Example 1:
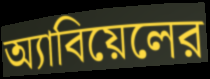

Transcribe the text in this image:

অ্যাবিয়েলের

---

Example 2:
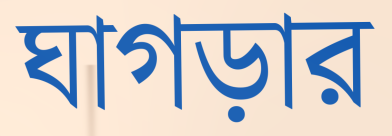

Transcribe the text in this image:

ঘাগড়ার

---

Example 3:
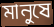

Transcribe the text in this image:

মানুষে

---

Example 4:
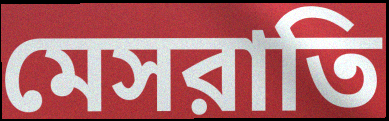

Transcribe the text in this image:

মেসরাতি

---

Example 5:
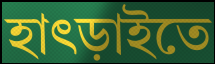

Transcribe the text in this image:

হাৎড়াইতে